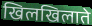
खिलखिलाते